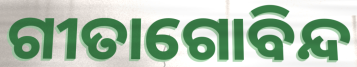
ଗୀତାଗୋବିନ୍ଦ